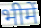
भीमें